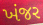
ખંજર